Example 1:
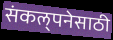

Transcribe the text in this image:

संकल्पनेसाठी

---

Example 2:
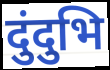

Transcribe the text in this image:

दुंदुभि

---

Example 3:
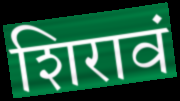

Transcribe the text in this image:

शिरावं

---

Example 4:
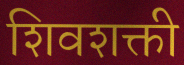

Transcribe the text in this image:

शिवशक्ती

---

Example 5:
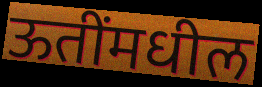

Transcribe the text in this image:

ऊतींमधील